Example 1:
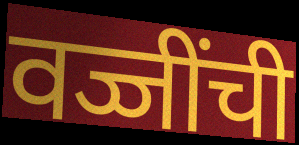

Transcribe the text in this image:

वज्जींची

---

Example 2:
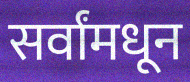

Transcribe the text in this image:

सर्वांमधून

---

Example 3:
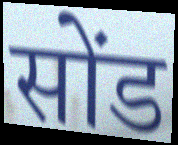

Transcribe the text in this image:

सोंड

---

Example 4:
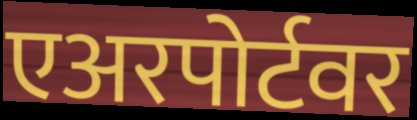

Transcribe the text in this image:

एअरपोर्टवर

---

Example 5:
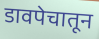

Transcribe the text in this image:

डावपेचातून